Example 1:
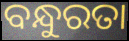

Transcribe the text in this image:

ବନ୍ଧୁରତା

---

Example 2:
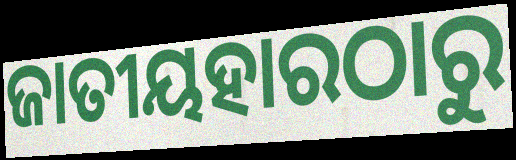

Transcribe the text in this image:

ଜାତୀୟହାରଠାରୁ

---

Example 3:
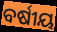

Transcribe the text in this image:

ବର୍ଷୀୟ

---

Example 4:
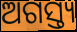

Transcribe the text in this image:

ଅଗସ୍ତ୍ୟ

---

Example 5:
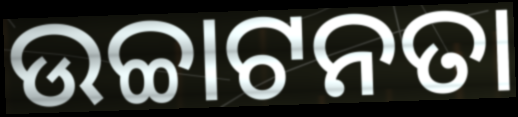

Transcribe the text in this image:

ଉଚ୍ଚାଟନତା